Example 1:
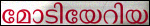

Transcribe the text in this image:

മോടിയേറിയ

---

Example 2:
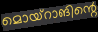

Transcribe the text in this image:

മൊയ്റാങിന്റെ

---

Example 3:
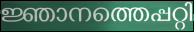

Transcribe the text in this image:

ജ്ഞാനത്തെപ്പറ്റി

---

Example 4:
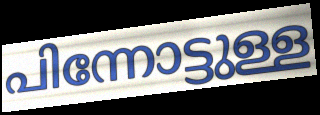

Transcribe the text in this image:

പിന്നോട്ടുള്ള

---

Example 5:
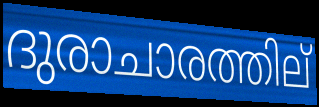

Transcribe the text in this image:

ദുരാചാരത്തില്